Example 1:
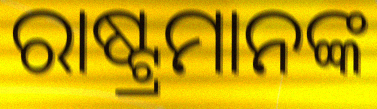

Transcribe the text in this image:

ରାଷ୍ଟ୍ରମାନଙ୍କ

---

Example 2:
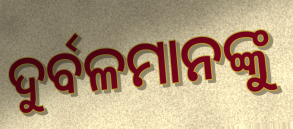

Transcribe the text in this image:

ଦୁର୍ବଳମାନଙ୍କୁ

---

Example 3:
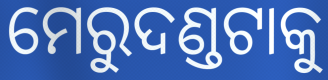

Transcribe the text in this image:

ମେରୁଦଣ୍ଡଟାକୁ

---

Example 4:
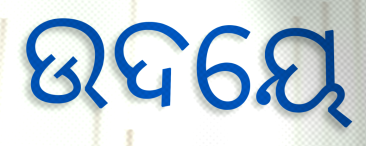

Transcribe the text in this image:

ଉଦୟେ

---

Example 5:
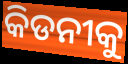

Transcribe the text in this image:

କିଡନୀକୁ